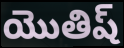
యొతిష్